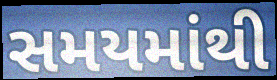
સમયમાંથી